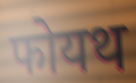
फोयथ